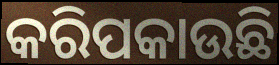
କରିପକାଉଛି